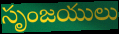
సృంజయులు